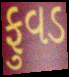
ફુવડ